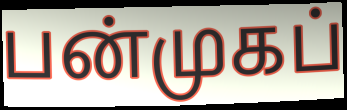
பன்முகப்